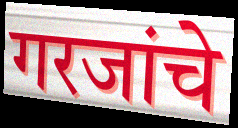
गरजांचे